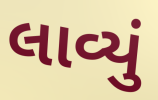
લાવ્યું